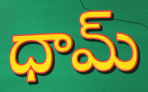
ధామ్